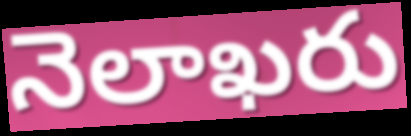
నెలాఖరు